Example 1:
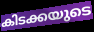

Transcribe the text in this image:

കിടക്കയുടെ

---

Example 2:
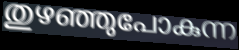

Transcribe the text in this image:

തുഴഞ്ഞുപോകുന്ന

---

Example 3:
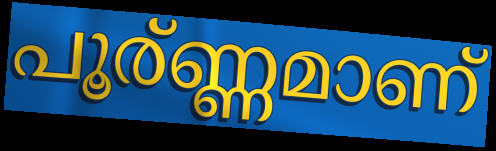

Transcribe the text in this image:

പൂര്ണ്ണമാണ്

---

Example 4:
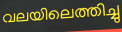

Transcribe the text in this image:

വലയിലെത്തിച്ചു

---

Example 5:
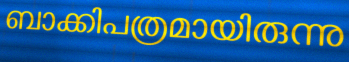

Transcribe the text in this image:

ബാക്കിപത്രമായിരുന്നു